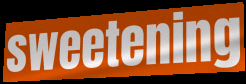
sweetening